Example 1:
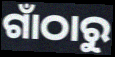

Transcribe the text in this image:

ଗାଁଠାରୁ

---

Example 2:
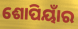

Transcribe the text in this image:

ଶୋପିୟାଁର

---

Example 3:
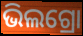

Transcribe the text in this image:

ଭିଲଗ୍ରୋ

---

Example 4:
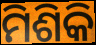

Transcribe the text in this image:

ମିଶିକି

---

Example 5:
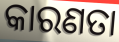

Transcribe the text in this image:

କାରଣତା